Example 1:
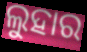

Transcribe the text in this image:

ଲୁହାର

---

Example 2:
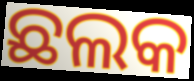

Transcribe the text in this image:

ଛଲକ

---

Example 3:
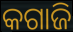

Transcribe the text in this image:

କଗାଜି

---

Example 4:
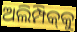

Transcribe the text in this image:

ଅଲିମ୍ପିକ୍‌କୁ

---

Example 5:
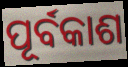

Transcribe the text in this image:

ପୂର୍ବକାଶ